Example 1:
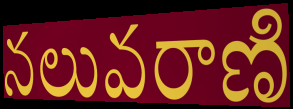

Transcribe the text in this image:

నలువరాణి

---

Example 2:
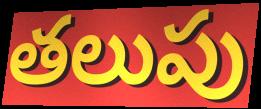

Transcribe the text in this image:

తలుపు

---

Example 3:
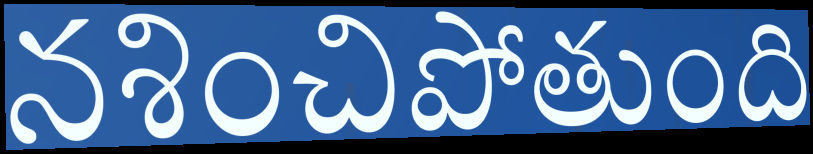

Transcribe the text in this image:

నశించిపోతుంది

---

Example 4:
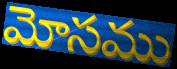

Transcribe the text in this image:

మోసము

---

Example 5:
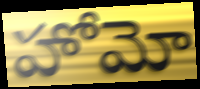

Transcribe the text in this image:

హోమో